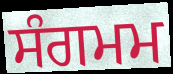
ਸੰਗਮਮ